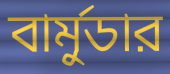
বার্মুডার